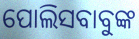
ପୋଲିସବାବୁଙ୍କ